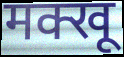
मक्खू